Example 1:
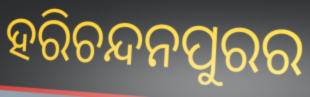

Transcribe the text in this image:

ହରିଚନ୍ଦନପୁରର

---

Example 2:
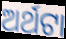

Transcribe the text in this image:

ଅର୍ଥଟା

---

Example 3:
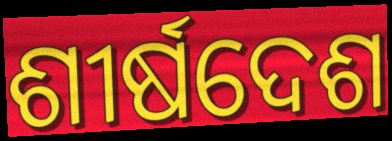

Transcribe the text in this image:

ଶୀର୍ଷଦେଶ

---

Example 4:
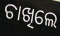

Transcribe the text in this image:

ଚାଖିଲେ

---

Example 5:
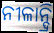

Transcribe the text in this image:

ନୀଳାନ୍ଦ୍ରି